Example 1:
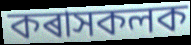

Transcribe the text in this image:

কৰাসকলক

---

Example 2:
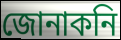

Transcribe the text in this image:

জোনাকনি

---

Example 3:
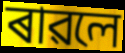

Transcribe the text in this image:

ৰাৱলে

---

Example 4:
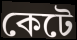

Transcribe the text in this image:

কেটে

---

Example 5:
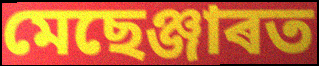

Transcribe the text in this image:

মেছেঞ্জাৰত